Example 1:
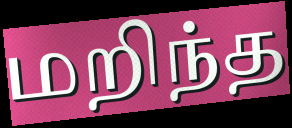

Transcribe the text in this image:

மறிந்த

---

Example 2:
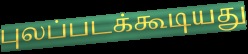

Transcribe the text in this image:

புலப்படக்கூடியது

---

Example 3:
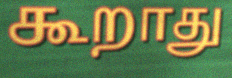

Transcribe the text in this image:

கூறாது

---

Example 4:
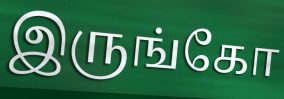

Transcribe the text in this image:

இருங்கோ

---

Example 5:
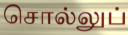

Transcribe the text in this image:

சொல்லுப்